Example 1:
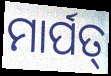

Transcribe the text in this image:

ମାର୍ପତ୍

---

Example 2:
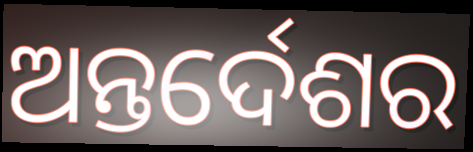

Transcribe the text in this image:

ଅନ୍ତର୍ଦେଶର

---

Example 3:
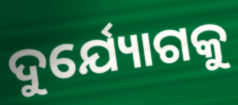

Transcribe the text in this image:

ଦୁର୍ଯ୍ୟୋଗକୁ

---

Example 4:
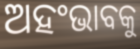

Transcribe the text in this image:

ଅହଂଭାବକୁ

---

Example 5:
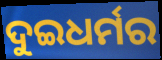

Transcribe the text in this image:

ଦୁଇଧର୍ମର